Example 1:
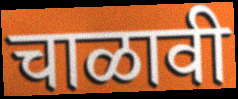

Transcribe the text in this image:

चाळावी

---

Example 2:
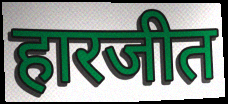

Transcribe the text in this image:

हारजीत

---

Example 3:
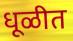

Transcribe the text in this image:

धूळीत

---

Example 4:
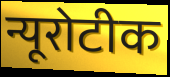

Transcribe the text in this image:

न्यूरोटीक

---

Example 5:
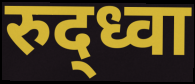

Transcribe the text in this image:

रुद्ध्वा